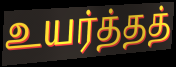
உயர்த்தத்